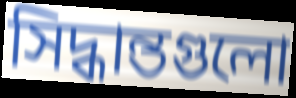
সিদ্ধান্তগুলো